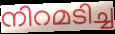
നിറമടിച്ച